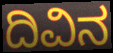
ದಿವಿನ